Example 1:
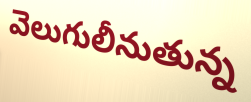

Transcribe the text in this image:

వెలుగులీనుతున్న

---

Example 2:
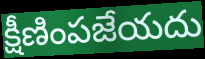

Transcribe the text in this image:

క్షీణింపజేయదు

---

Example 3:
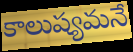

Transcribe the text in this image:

కాలుష్యమనే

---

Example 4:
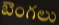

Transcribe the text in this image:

బెంగలు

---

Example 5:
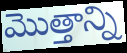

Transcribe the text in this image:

మొత్తాన్ని